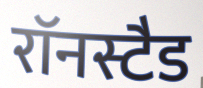
रॉनस्टैड